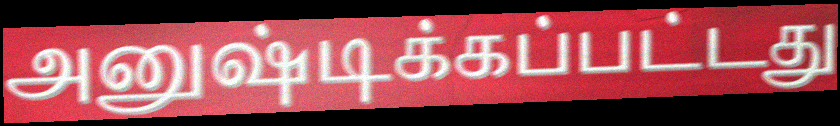
அனுஷ்டிக்கப்பட்டது